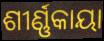
ଶୀର୍ଣ୍ଣକାୟା